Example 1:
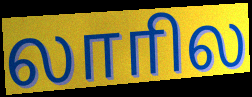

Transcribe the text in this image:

லாரில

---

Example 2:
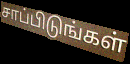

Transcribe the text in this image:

சாப்பிடுங்கள்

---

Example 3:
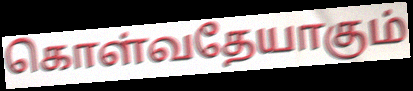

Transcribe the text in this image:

கொள்வதேயாகும்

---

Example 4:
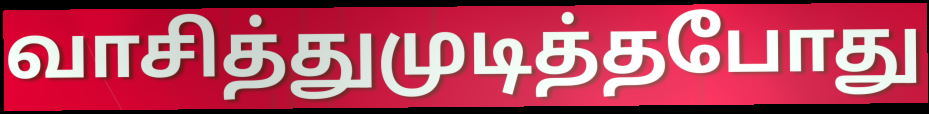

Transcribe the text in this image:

வாசித்துமுடித்தபோது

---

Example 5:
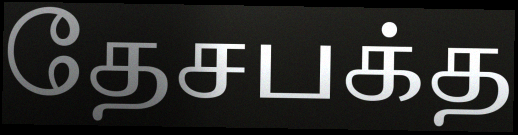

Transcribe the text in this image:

தேசபக்த